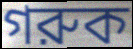
গৰুক